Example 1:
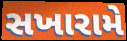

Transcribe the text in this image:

સખારામે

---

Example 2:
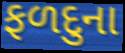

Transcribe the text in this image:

ફળદુના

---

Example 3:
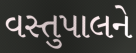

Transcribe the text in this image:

વસ્તુપાલને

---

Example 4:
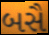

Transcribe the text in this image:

બસૈ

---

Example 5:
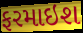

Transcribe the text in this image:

ફરમાઇશ